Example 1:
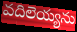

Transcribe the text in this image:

వదిలెయ్యను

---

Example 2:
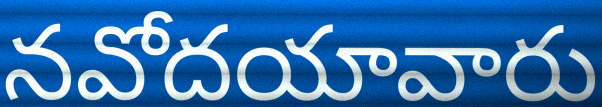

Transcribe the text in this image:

నవోదయావారు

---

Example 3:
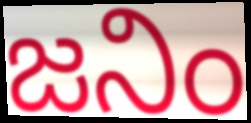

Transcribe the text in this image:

జనిం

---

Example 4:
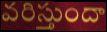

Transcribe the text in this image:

వరిస్తుందా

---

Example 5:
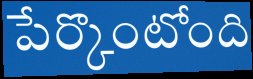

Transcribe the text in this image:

పేర్కొంటోంది